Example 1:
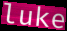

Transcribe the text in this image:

luke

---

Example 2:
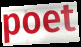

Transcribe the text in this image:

poet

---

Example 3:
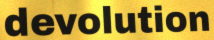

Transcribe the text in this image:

devolution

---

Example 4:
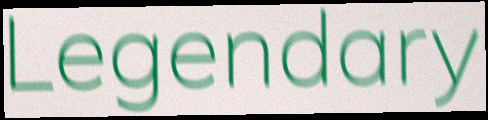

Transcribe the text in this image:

Legendary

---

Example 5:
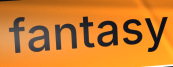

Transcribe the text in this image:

fantasy